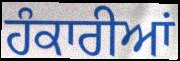
ਹੰਕਾਰੀਆਂ